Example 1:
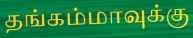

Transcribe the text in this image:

தங்கம்மாவுக்கு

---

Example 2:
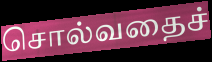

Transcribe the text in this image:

சொல்வதைச்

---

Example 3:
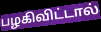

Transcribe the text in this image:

பழகிவிட்டால்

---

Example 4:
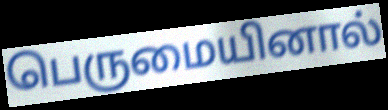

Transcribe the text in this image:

பெருமையினால்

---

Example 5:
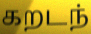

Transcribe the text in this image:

கறடந்